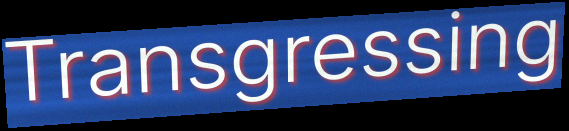
Transgressing